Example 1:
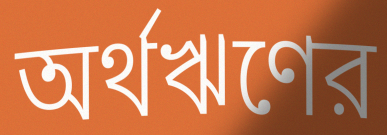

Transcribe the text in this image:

অর্থঋণের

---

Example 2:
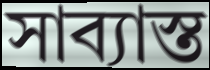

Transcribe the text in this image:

সাব্যাস্ত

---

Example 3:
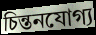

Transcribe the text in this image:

চিন্তনযোগ্য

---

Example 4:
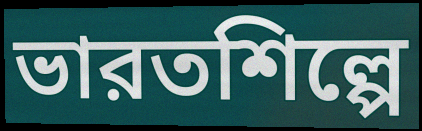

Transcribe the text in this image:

ভারতশিল্পে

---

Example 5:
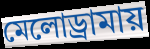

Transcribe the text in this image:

মেলোড্রামায়